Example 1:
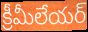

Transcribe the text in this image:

క్రీమీలేయర్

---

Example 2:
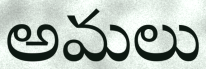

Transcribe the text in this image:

అమలు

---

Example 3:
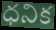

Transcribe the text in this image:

ధనిక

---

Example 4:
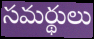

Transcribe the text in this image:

సమర్థులు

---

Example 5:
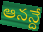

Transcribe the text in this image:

ఆనన్దే